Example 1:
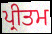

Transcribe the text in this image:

ਪ੍ਰੀਤਮ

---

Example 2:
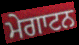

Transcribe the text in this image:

ਮੇਗਾਟਨ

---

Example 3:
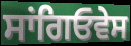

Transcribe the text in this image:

ਸਾਂਗਿਓਵੇਸ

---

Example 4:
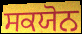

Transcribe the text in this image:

ਸਕਯੋਨ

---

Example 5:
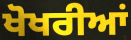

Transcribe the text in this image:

ਖੋਖਰੀਆਂ